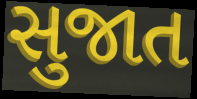
સુજાત